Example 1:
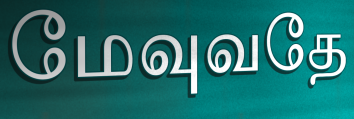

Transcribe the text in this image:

மேவுவதே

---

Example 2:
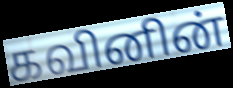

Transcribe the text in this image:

கவினின்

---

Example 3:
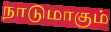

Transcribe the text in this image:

நாடுமாகும்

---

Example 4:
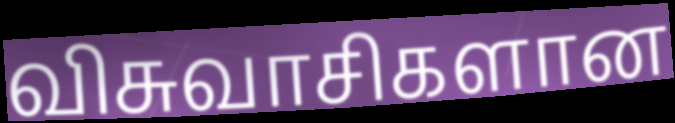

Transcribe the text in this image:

விசுவாசிகளான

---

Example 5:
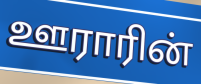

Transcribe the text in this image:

ஊராரின்